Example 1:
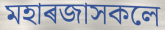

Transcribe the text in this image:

মহাৰজাসকলে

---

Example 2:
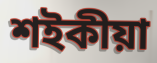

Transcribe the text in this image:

শইকীয়া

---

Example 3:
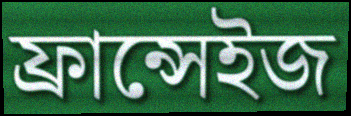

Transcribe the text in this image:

ফ্ৰান্সেইজ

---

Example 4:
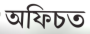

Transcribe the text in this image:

অফিচত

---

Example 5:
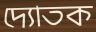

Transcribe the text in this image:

দ্যোতক